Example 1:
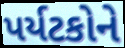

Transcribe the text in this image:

પર્યટકોને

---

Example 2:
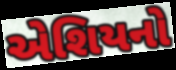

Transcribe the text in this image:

એશિયનો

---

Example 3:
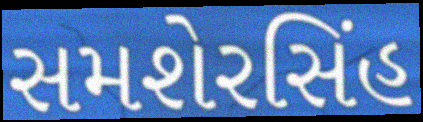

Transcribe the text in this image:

સમશેરસિંહ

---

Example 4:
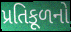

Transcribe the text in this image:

પ્રતિકૂળનો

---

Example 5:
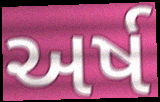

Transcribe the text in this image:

અર્ષ